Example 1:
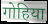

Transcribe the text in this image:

गोहिया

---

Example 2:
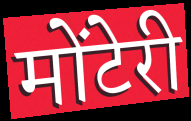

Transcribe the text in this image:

मोंटेरी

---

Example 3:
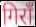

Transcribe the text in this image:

गिराँ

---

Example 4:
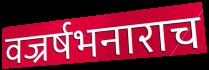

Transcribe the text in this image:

वज्रर्षभनाराच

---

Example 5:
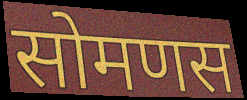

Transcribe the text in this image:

सोमणस